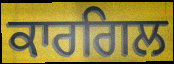
ਕਾਰਗਿਲ